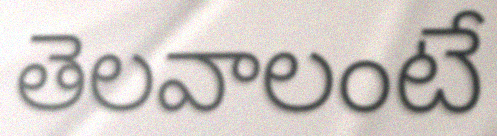
తెలవాలంటే